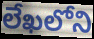
లేఖలోని